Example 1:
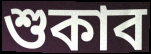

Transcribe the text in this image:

শুকাব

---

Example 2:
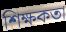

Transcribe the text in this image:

শিক্ষকতা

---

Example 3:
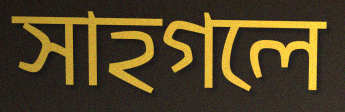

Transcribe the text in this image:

সাহগলে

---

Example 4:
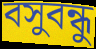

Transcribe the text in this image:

বসুবন্ধু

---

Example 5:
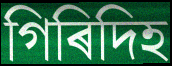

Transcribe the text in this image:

গিৰিদিহ